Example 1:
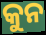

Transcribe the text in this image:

କୁନ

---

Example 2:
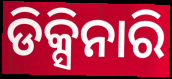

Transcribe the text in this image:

ଡିକ୍ସିନାରି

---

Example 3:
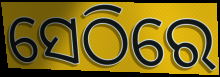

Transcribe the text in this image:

ସେଠିରେ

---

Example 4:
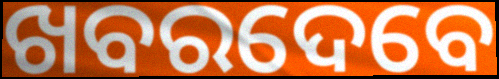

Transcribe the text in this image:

ଖବରଦେବେ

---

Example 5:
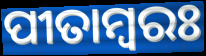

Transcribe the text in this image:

ପୀତାମ୍ୱରଃ